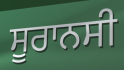
ਸੂਰਾਨਸੀ